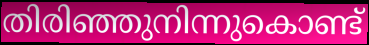
തിരിഞ്ഞുനിന്നുകൊണ്ട്